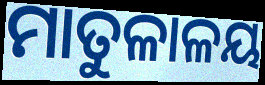
ମାତୁଳାଳୟ